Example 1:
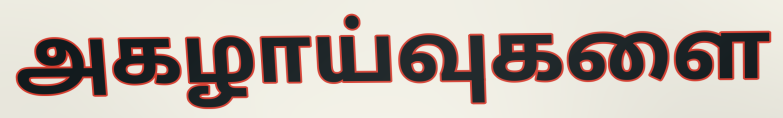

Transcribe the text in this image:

அகழாய்வுகளை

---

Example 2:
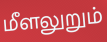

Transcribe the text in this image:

மீளலுறும்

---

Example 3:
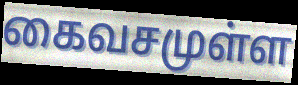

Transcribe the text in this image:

கைவசமுள்ள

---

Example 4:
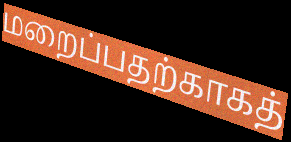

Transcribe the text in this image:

மறைப்பதற்காகத்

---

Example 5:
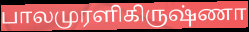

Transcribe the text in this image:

பாலமுரளிகிருஷ்ணா